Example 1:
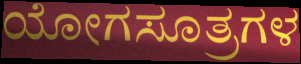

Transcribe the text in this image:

ಯೋಗಸೂತ್ರಗಳ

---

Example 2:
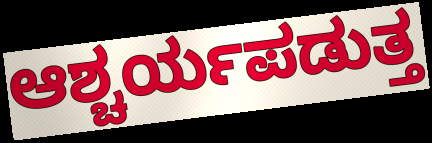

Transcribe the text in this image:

ಆಶ್ಚರ್ಯಪಡುತ್ತ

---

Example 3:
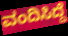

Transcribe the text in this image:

ವಂದಿಸಿದ್ದೆ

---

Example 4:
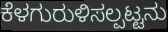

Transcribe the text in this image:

ಕೆಳಗುರುಳಿಸಲ್ಪಟ್ಟನು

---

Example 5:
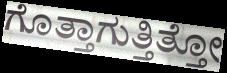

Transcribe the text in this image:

ಗೊತ್ತಾಗುತ್ತಿತ್ತೋ